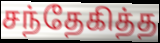
சந்தேகித்த